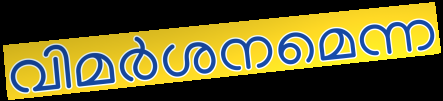
വിമർശനമെന്ന